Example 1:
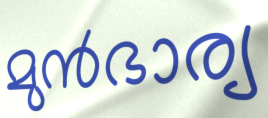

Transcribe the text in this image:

മുൻഭാര്യ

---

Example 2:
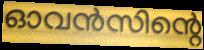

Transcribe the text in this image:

ഓവൻസിന്റെ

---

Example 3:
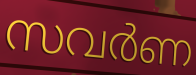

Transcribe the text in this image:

സവർണ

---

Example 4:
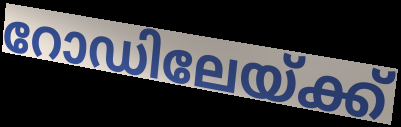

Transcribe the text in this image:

റോഡിലേയ്ക്ക്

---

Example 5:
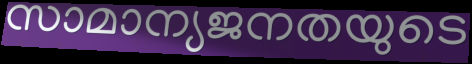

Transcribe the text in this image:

സാമാന്യജനതയുടെ